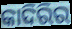
କାଦିରିର